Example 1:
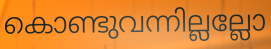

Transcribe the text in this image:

കൊണ്ടുവന്നില്ലല്ലോ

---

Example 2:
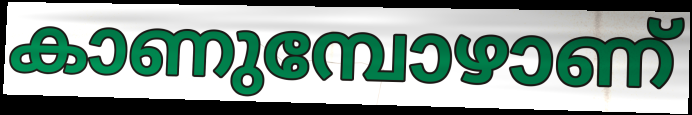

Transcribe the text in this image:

കാണുമ്പോഴാണ്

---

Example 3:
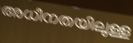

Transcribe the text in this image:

അധീനതയിലുള്ള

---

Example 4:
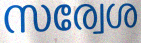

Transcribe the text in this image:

സര്വേശ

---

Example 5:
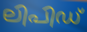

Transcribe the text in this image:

ലിപിഡ്